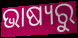
ଭାଷ୍ୟରୁ